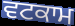
ਵਟਕਾਮ